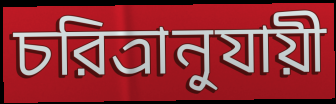
চরিত্রানুযায়ী